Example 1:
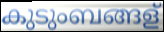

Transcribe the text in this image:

കുടുംബങ്ങള്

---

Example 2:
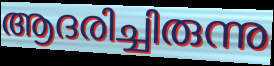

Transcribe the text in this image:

ആദരിച്ചിരുന്നു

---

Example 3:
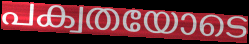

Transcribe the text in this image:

പക്വതയോടെ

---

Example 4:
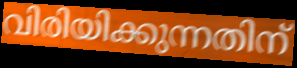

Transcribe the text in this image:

വിരിയിക്കുന്നതിന്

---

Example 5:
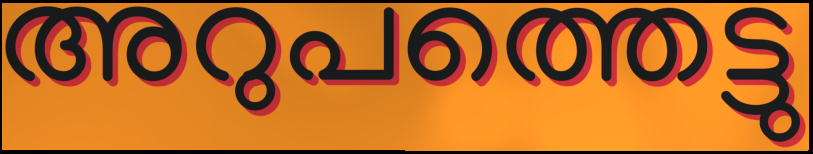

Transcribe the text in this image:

അറുപത്തെട്ടു